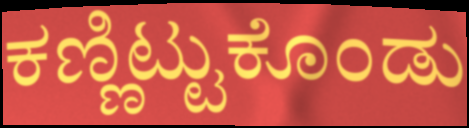
ಕಣ್ಣಿಟ್ಟುಕೊಂಡು